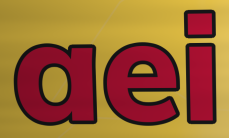
aei